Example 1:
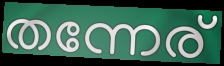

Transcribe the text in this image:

തന്നേര്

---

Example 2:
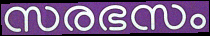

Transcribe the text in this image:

സരഭസം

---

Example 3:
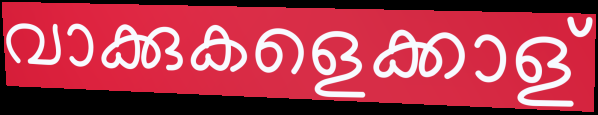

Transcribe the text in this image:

വാക്കുകളെക്കാള്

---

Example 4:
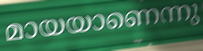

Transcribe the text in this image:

മായയാണെന്നു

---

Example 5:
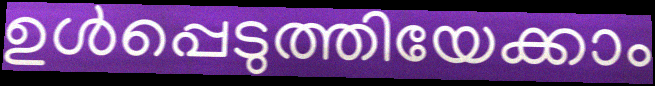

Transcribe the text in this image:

ഉൾപ്പെടുത്തിയേക്കാം